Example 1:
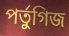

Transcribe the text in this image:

পর্তুগিজ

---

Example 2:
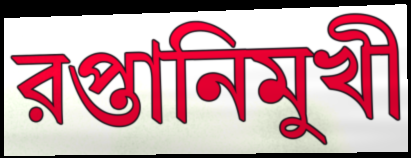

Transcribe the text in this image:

রপ্তানিমুখী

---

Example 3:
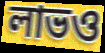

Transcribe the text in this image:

লাভও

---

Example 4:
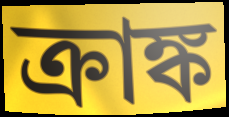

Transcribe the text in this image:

ক্রাঙ্ক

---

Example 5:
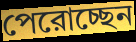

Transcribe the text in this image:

পেরোচ্ছেন